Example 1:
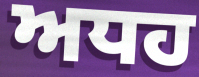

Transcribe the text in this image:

ਅਧਹ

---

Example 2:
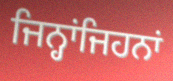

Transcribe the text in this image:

ਜਿਨ੍ਹਾਂਜਿਹਨਾਂ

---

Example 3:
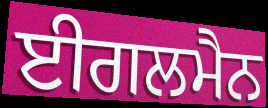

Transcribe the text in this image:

ਈਗਲਮੈਨ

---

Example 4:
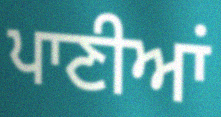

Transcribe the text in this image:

ਪਾਣੀਆਂ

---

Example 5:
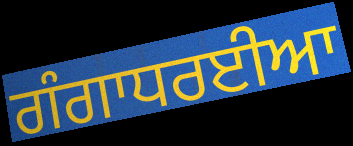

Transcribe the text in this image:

ਗੰਗਾਧਰਈਆ